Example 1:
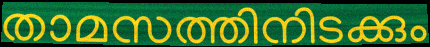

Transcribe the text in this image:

താമസത്തിനിടക്കും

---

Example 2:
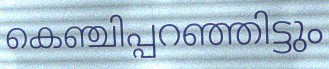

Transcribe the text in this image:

കെഞ്ചിപ്പറഞ്ഞിട്ടും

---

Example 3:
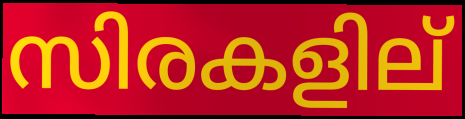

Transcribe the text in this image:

സിരകളില്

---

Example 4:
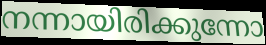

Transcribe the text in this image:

നന്നായിരിക്കുന്നോ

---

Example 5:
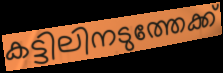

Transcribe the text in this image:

കട്ടിലിനടുത്തേക്ക്